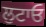
ਲੁਟਾਓ